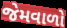
જેમવાળો